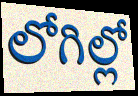
లోగిల్లో